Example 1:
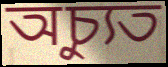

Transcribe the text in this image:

অচ্যুত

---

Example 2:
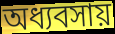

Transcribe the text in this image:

অধ্যবসায়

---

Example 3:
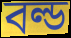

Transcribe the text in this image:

বল্ড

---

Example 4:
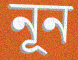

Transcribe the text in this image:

নূন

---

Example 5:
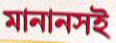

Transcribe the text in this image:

মানানসই